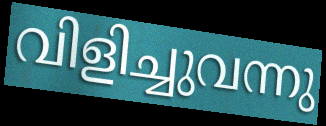
വിളിച്ചുവന്നു